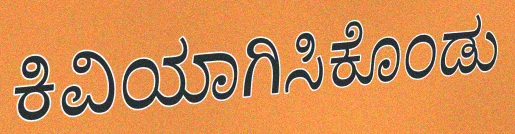
ಕಿವಿಯಾಗಿಸಿಕೊಂಡು